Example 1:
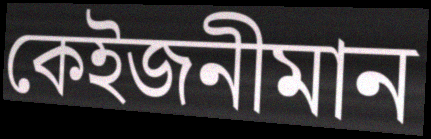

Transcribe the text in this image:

কেইজনীমান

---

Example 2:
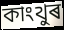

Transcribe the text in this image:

কাংথুৰ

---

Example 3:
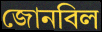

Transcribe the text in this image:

জোনবিল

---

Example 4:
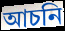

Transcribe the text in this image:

আচনি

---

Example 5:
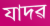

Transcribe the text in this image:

যাদৱ